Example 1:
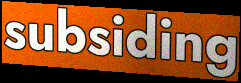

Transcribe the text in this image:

subsiding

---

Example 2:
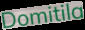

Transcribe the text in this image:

Domitila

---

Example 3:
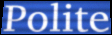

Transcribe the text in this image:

Polite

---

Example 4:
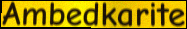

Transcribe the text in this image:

Ambedkarite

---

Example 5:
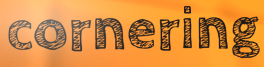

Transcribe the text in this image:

cornering